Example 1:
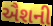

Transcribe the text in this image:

ઐશની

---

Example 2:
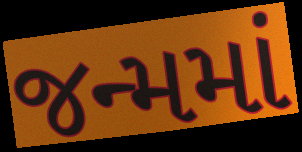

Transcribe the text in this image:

જન્મમાં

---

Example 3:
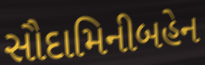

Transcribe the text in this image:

સૌદામિનીબહેન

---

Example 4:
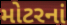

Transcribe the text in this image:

મોટરનાં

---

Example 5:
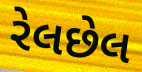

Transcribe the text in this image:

રેલછેલ